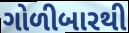
ગોળીબારથી